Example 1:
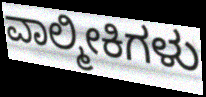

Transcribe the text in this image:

ವಾಲ್ಮೀಕಿಗಳು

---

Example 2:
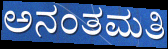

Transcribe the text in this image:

ಅನಂತಮತಿ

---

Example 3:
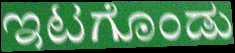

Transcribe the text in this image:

ಇಟಗೊಂಡು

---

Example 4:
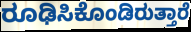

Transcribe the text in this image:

ರೂಢಿಸಿಕೊಂಡಿರುತ್ತಾರೆ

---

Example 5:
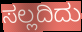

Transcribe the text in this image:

ಸಲ್ಲದಿದು